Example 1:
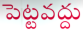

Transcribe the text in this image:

పెట్టవద్దు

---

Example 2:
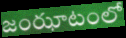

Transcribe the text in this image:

జంఝాటంలో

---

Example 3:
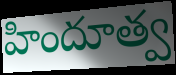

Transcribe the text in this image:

హిందూత్వ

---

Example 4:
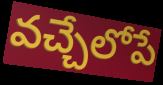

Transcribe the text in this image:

వచ్చేలోపే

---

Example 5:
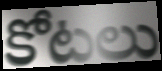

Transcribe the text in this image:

కోటలు